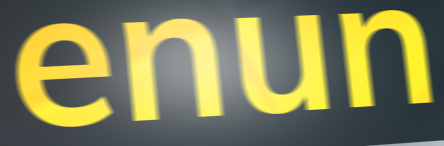
enun